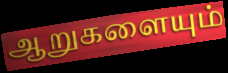
ஆறுகளையும்